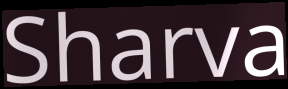
Sharva